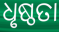
ଧୃଷ୍ଠତା